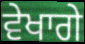
ਵੇਖਾਗੇ